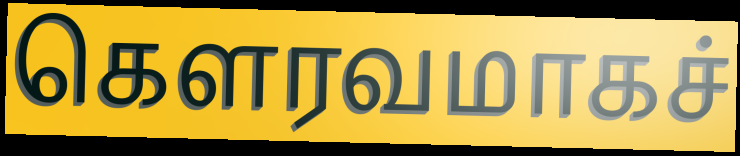
கௌரவமாகச்